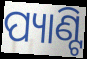
ପ୍ୟାଣ୍ଟି